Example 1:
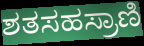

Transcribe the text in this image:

ಶತಸಹಸ್ರಾಣಿ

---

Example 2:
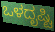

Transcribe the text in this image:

ಒಳದೃಷ್ಟಿ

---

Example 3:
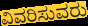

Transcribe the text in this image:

ವಿವರಿಸುವರು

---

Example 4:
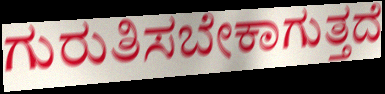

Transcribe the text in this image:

ಗುರುತಿಸಬೇಕಾಗುತ್ತದೆ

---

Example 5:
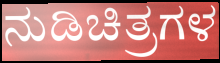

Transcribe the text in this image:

ನುಡಿಚಿತ್ರಗಳ